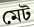
মেট